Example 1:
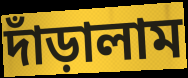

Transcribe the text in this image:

দাঁড়ালাম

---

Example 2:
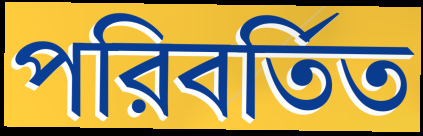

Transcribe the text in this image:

পরিবর্তিত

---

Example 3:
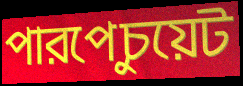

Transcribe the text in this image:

পারপেচুয়েট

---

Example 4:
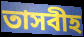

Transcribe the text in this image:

তাসবীহ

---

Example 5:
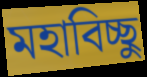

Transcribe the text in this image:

মহাবিচ্ছু